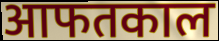
आफतकाल